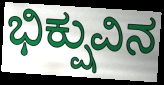
ಭಿಕ್ಷುವಿನ